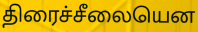
திரைச்சீலையென